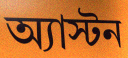
অ্যাস্টন